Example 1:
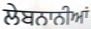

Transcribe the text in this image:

ਲੇਬਨਾਨੀਆਂ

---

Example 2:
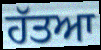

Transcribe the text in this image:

ਹੱਤਆ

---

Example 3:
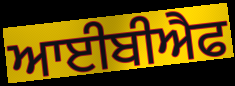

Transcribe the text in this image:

ਆਈਬੀਐਫ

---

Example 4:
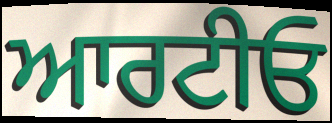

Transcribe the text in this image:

ਆਰਟੀਓ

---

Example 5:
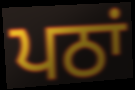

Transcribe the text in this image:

ਪਠਾਂ